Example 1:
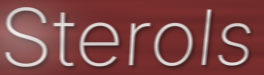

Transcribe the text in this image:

Sterols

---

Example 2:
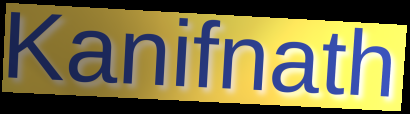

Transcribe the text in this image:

Kanifnath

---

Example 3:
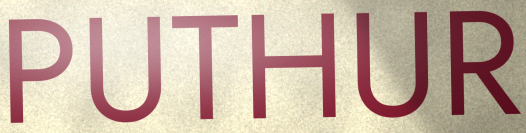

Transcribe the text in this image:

PUTHUR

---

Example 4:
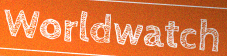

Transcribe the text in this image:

Worldwatch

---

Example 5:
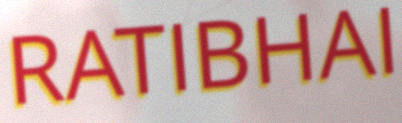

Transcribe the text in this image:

RATIBHAI